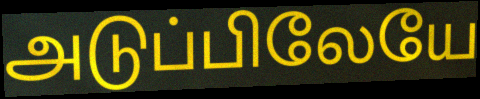
அடுப்பிலேயே